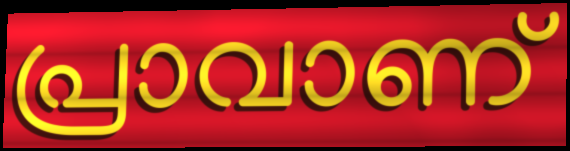
പ്രാവാണ്